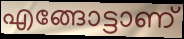
എങ്ങോട്ടാണ്